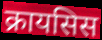
क्रायसिस